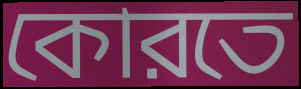
কোরতে